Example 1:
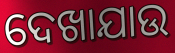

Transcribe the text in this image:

ଦେଖାଯାଉ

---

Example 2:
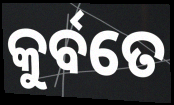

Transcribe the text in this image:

କୁର୍ବତେ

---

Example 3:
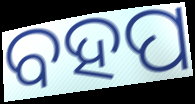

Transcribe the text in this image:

ବହପ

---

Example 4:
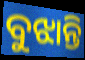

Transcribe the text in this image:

ବୁଝାନ୍ତି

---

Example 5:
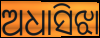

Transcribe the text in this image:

ଅଧାସିଝା